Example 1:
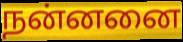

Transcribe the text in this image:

நன்னனை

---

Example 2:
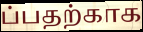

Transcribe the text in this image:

ப்பதற்காக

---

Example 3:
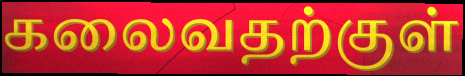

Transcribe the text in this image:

கலைவதற்குள்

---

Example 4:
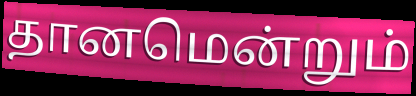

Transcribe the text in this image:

தானமென்றும்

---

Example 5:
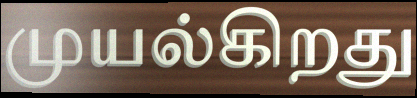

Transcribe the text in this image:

முயல்கிறது